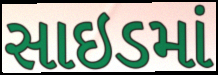
સાઇડમાં